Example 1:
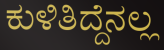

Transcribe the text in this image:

ಕುಳಿತಿದ್ದೆನಲ್ಲ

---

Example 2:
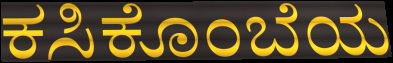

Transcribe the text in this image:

ಕಸಿಕೊಂಬೆಯ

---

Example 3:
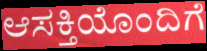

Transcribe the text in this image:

ಆಸಕ್ತಿಯೊಂದಿಗೆ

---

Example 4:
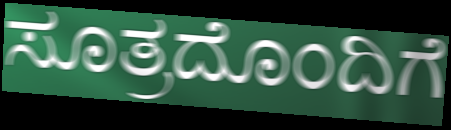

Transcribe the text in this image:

ಸೂತ್ರದೊಂದಿಗೆ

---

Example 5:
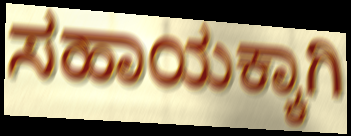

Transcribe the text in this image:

ಸಹಾಯಕ್ಕಾಗಿ